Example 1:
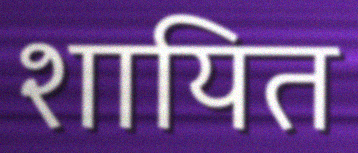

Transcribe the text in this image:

शायित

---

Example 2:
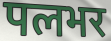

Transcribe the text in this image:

पलभर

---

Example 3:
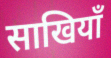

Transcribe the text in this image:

साखियाँ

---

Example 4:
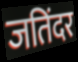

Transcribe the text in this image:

जतिंदर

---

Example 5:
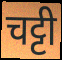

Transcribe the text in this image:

चट्टी